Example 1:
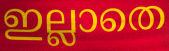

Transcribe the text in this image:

ഇല്ലാതെ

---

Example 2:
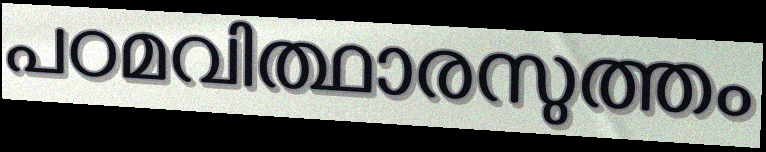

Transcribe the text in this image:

പഠമവിത്ഥാരസുത്തം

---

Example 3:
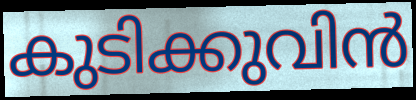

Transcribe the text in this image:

കുടിക്കുവിൻ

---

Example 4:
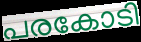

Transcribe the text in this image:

പരകോടി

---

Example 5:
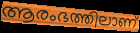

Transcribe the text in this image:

ആരംഭത്തിലാണ്